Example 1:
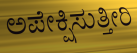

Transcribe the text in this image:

ಅಪೇಕ್ಷಿಸುತ್ತೀರಿ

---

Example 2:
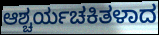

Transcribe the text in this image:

ಆಶ್ಚರ್ಯಚಕಿತಳಾದ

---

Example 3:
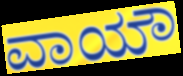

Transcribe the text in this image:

ವಾಯೌ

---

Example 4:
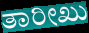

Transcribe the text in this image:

ತಾರೀಖು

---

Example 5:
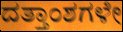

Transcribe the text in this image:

ದತ್ತಾಂಶಗಳೇ